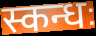
स्कन्धः